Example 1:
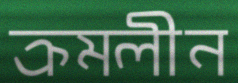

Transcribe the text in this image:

ক্রমলীন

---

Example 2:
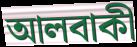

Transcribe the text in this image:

আলবাকী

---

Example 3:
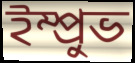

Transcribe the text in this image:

ইম্প্রুভ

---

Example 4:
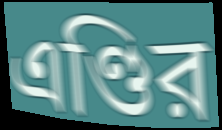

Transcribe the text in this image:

এণ্ডির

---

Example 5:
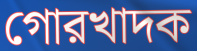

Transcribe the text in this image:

গোরখাদক